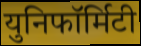
युनिफॉर्मिटी